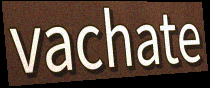
vachate